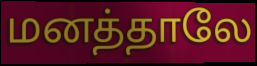
மனத்தாலே